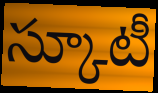
స్కూటీ